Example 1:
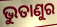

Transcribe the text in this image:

ଭୁତାଣୁର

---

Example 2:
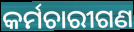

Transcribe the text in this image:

କର୍ମଚାରୀଗଣ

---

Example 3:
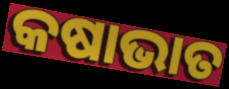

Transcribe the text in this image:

କଷାଭାତ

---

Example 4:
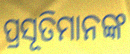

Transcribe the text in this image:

ପ୍ରସୂତିମାନଙ୍କ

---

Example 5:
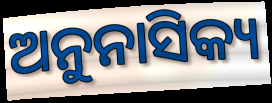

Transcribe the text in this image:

ଅନୁନାସିକ୍ୟ